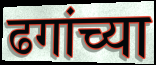
ढगांच्या